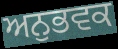
ਅਨੁਭਵਕ